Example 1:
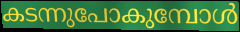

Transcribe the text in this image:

കടന്നുപോകുമ്പോൾ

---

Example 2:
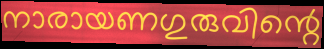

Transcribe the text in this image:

നാരായണഗുരുവിന്റെ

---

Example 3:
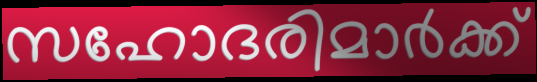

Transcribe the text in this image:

സഹോദരിമാർക്ക്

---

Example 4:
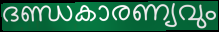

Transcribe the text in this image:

ദണ്ഡകാരണ്യവും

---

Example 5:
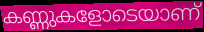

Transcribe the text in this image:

കണ്ണുകളോടെയാണ്